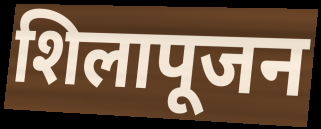
शिलापूजन